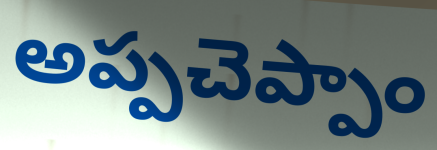
అప్పచెప్పాం